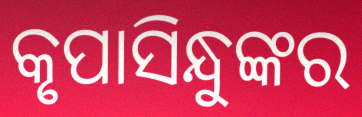
କୃପାସିନ୍ଧୁଙ୍କର